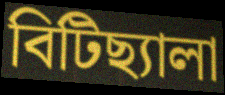
বিটিছ্যালা